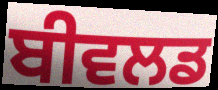
ਬੀਵਲਡ